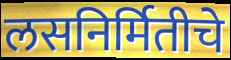
लसनिर्मितीचे